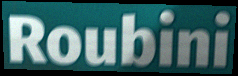
Roubini